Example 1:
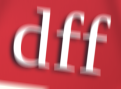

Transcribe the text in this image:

dff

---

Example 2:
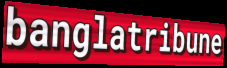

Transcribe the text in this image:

banglatribune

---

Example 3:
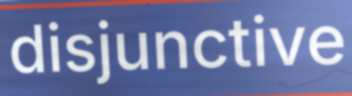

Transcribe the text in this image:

disjunctive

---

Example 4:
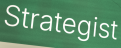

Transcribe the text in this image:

Strategist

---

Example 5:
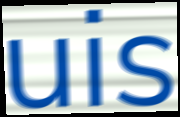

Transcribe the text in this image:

uis